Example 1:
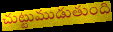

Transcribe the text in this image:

చుట్టుముడుతుంది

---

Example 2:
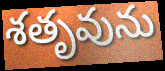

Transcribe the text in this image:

శతృవును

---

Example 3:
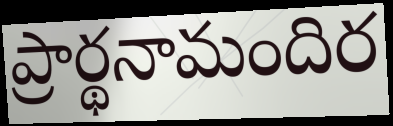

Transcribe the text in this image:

ప్రార్థనామందిర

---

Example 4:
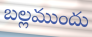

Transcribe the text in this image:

బల్లముందు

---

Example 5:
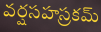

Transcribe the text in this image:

వర్షసహస్రకమ్